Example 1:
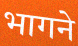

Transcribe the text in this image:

भागने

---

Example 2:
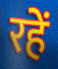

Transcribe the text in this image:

रहें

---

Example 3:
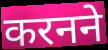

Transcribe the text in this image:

करनने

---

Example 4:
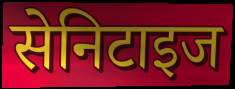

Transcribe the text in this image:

सेनिटाइज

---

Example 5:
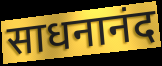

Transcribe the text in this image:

साधनानंद